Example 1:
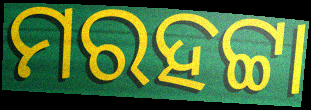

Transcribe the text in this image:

ମରହଟ୍ଟା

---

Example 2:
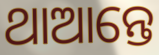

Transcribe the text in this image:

ଥାଆନ୍ତେ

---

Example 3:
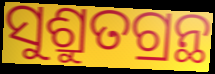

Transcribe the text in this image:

ସୁଶ୍ରୁତଗ୍ରନ୍ଥ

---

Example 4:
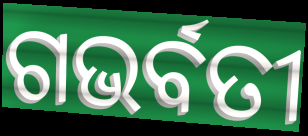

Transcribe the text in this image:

ଗଭର୍ବତୀ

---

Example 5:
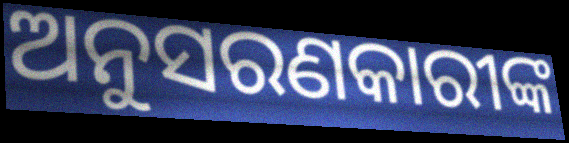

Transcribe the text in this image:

ଅନୁସରଣକାରୀଙ୍କ